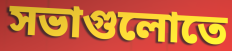
সভাগুলোতে